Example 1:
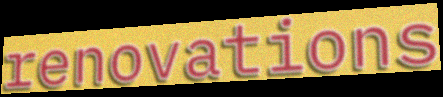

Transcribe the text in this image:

renovations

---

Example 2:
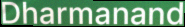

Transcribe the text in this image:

Dharmanand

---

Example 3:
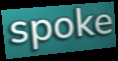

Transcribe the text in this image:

spoke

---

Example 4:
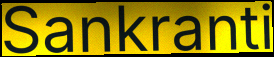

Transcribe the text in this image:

Sankranti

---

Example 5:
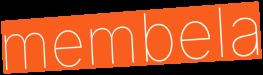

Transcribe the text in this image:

membela